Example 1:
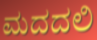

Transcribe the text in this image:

ಮದದಲಿ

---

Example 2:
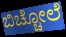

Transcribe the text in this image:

ಬಿಚ್ಚೋಲೆ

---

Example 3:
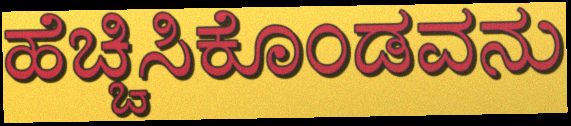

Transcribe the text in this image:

ಹೆಚ್ಚಿಸಿಕೊಂಡವನು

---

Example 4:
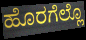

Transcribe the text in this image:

ಹೊರಗೆಲ್ಲೊ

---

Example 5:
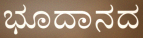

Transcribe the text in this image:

ಭೂದಾನದ